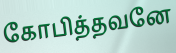
கோபித்தவனே